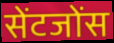
सेंटजोंस